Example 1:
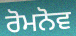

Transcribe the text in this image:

ਰੋਮਨੋਵ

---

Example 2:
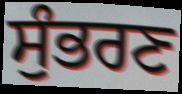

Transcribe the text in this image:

ਸੁੰਭਰਣ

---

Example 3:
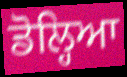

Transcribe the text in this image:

ਡੋਲ੍ਹਿਆ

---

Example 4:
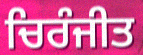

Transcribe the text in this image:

ਚਿਰੰਜੀਤ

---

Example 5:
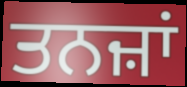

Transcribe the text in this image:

ਤਨਜ਼ਾਂ